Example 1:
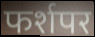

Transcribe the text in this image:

फर्शपर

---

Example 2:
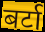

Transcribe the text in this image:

बर्टा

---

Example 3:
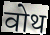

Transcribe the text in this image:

वोथ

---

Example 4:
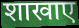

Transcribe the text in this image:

शाखाए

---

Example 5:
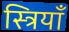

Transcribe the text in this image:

स्‍त्रियाँ